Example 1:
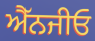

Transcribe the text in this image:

ਐੱਨਜੀਓ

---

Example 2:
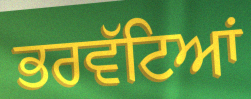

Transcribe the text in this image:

ਭਰਵੱਟਿਆਂ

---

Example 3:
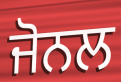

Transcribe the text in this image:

ਜੋਨਲ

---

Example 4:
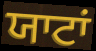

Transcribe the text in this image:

ਯਾਟਾਂ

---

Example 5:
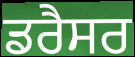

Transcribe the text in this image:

ਡਰੈਸਰ